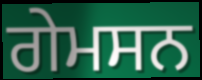
ਗੇਮਸਨ